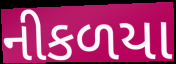
નીકળયા